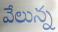
వేలున్న